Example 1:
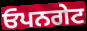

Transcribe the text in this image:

ਓਪਨਗੇਟ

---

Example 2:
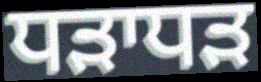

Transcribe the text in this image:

ਧੜਾਧੜ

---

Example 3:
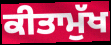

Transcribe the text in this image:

ਕੀਤਾਮੁੱਖ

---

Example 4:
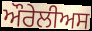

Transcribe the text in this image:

ਔਰੇਲੀਅਸ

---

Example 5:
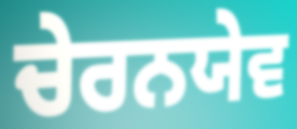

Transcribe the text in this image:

ਚੇਰਨਯੇਵ